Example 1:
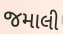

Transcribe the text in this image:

જમાલી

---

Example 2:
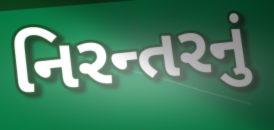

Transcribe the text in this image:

નિરન્તરનું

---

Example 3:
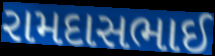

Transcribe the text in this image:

રામદાસભાઈ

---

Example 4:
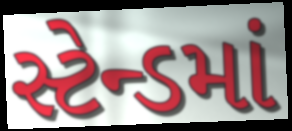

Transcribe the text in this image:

સ્ટેન્ડમાં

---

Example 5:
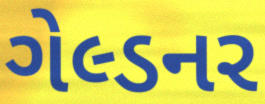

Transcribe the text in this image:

ગેલ્ડનર